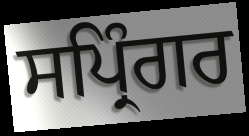
ਸਪ੍ਰਿੰਗਰ